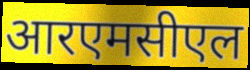
आरएमसीएल